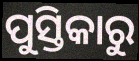
ପୁସ୍ତିକାରୁ